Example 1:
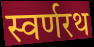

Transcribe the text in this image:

स्वर्णरथ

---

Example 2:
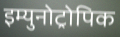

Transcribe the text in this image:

इम्युनोट्रोपिक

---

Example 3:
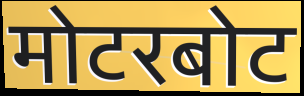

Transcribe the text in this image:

मोटरबोट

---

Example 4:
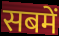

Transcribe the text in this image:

सबमें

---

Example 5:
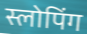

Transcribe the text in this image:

स्लोपिंग